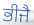
ਭੀਜੈ